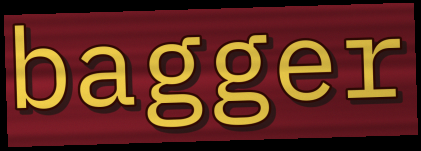
bagger